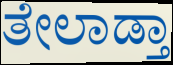
ತೇಲಾಡ್ತಾ